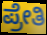
ಪ್ರೇತಿ